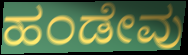
ಹಂಡೇವು